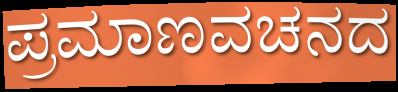
ಪ್ರಮಾಣವಚನದ